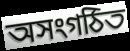
অসংগঠিত